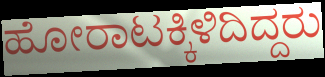
ಹೋರಾಟಕ್ಕಿಳಿದಿದ್ದರು